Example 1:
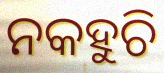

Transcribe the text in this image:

ନକହୁଚି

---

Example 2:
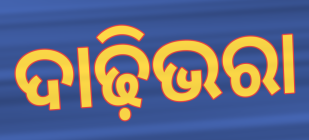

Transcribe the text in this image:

ଦାଢ଼ିଭରା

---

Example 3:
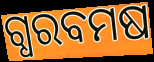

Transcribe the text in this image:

ଗ୍ଧରବମଷ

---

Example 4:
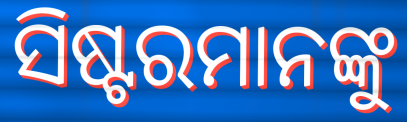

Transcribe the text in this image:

ସିଷ୍ଟରମାନଙ୍କୁ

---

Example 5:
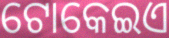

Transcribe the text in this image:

ଟୋକେଇଏ